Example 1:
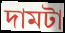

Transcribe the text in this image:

দামটা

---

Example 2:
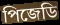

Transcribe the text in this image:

পিজেডি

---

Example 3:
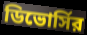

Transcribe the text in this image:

ডিভোর্সির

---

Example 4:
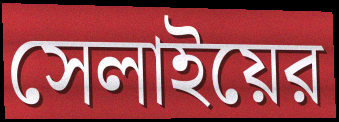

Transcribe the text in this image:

সেলাইয়ের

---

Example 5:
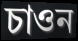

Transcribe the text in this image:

চাওন